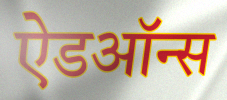
ऐडऑन्स